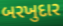
બરખુદાર